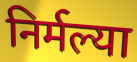
निर्मल्या